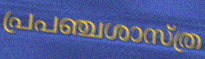
പ്രപഞ്ചശാസ്ത്ര